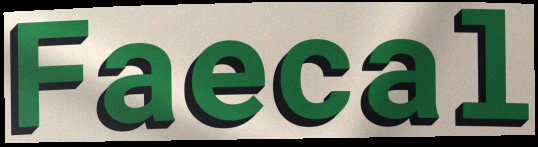
Faecal